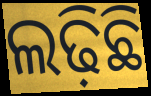
ଲଢ଼ିଛି